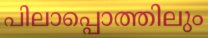
പിലാപ്പൊത്തിലും